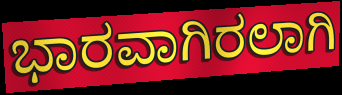
ಭಾರವಾಗಿರಲಾಗಿ